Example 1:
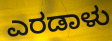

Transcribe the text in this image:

ಎರಡಾಳು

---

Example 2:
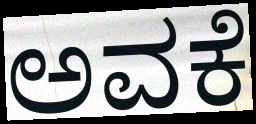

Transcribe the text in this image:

ಅವಕೆ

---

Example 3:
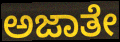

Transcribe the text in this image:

ಅಜಾತೇ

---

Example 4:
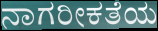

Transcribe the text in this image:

ನಾಗರೀಕತೆಯ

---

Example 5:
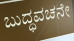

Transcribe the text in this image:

ಬುದ್ಧವಚನೇ